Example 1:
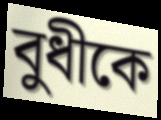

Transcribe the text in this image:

বুধীকে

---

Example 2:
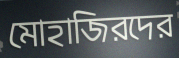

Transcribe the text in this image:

মোহাজিরদের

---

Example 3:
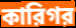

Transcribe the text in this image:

কারিগর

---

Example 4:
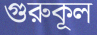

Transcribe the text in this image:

গুরুকূল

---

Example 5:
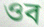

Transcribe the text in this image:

ওব